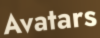
Avatars